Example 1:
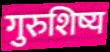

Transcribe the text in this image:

गुरुशिष्य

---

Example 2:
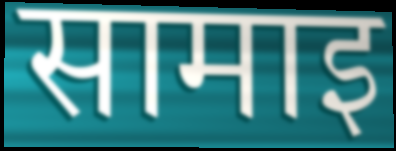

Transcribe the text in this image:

सामाइ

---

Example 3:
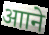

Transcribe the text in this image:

आाने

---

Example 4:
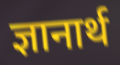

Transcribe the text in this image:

ज्ञानार्थ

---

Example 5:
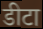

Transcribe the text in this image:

डीटा